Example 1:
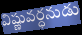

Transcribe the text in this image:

విష్ణువర్ధనుడు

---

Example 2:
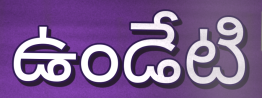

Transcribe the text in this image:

ఉండేటి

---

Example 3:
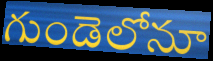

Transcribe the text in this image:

గుండెలోనూ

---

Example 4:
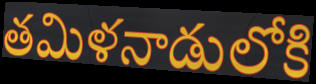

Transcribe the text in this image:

తమిళనాడులోకి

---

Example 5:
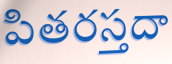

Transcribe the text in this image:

పితరస్తదా